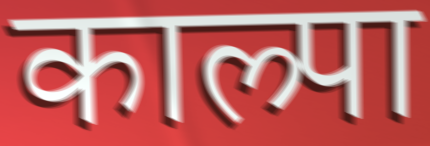
काल्पा